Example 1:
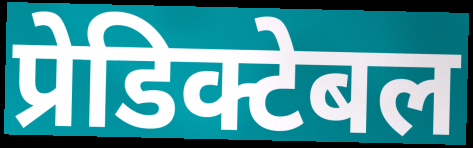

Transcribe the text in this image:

प्रेडिक्टेबल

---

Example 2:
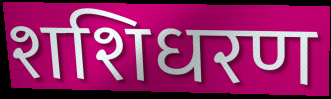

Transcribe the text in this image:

शशिधरण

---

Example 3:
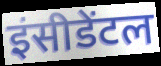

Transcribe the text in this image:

इंसीडेंटल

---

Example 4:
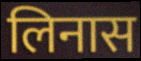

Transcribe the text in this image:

लिनास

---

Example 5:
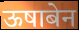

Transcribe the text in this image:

ऊषाबेन